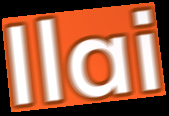
Ilai